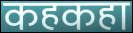
कहकहा